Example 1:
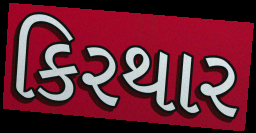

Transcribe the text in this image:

કિરથાર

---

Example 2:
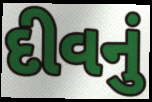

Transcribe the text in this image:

દીવનું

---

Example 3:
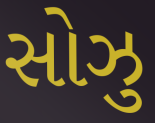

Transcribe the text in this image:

સોઝુ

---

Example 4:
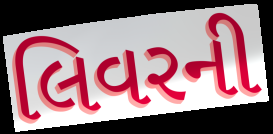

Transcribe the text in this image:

લિવરની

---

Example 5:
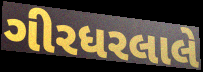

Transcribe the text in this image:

ગીરધરલાલે